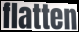
flatten